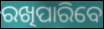
ରଖିପାରିବେ